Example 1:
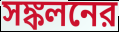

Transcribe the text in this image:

সঙ্কলনের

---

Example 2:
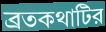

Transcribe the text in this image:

ব্রতকথাটির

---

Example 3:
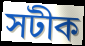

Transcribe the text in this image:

সটীক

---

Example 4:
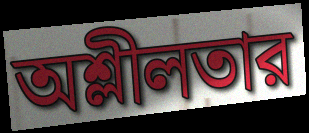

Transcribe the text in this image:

অশ্লীলতার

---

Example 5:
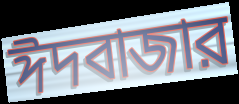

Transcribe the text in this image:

ঈদবাজার